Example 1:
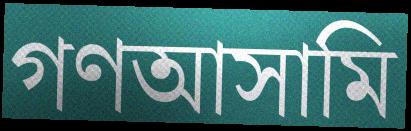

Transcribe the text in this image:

গণআসামি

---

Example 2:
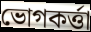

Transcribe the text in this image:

ভোগকর্ত্তা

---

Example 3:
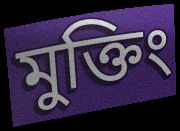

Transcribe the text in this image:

মুক্তিং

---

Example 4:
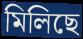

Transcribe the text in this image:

মিলিছে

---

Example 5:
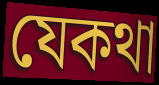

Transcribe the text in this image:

যেকথা